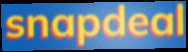
snapdeal